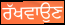
ਰੱਖਵਾਉਣ